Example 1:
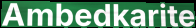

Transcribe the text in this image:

Ambedkarite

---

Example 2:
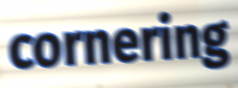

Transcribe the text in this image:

cornering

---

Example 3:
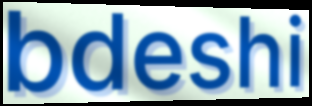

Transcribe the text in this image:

bdeshi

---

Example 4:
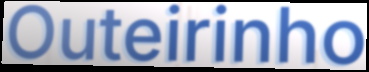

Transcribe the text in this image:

Outeirinho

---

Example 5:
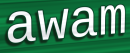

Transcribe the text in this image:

awam